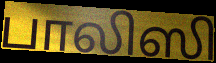
பாலிஸி